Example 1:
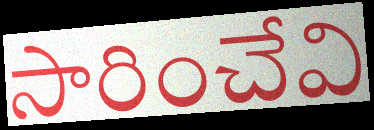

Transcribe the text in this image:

సారించేవి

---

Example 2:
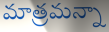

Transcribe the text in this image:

మాత్రమన్నా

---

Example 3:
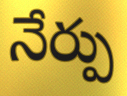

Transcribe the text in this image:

నేర్పు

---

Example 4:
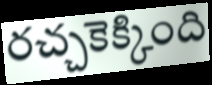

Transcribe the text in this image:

రచ్చకెక్కింది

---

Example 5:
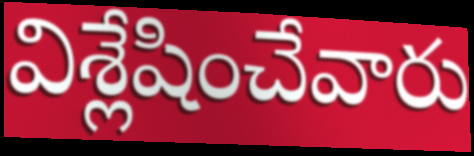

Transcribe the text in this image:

విశ్లేషించేవారు